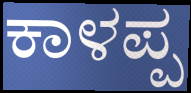
ಕಾಳಪ್ಪ